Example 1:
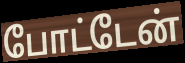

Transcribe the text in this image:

போட்டேன்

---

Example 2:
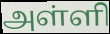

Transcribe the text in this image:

அள்ளி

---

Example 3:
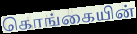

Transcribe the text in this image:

கொங்கையின்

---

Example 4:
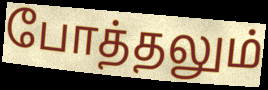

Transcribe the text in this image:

போத்தலும்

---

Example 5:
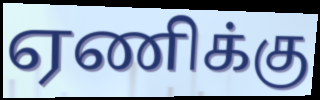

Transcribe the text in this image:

ஏணிக்கு